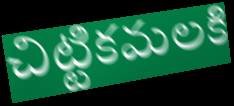
చిట్టికమలకి